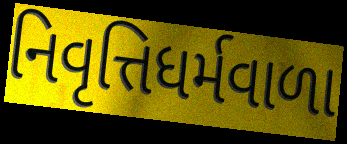
નિવૃત્તિધર્મવાળા